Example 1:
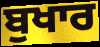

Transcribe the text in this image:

ਬੁਖਾਰ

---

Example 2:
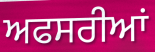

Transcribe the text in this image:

ਅਫਸਰੀਆਂ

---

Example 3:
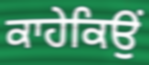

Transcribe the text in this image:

ਕਾਹੇਕਿਉਂ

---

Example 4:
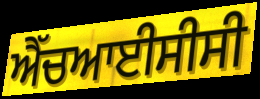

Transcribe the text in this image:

ਐੱਚਆਈਸੀਸੀ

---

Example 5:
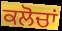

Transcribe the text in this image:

ਕਲੋਚਾਂ